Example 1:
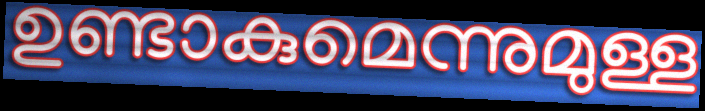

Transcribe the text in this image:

ഉണ്ടാകുമെന്നുമുള്ള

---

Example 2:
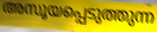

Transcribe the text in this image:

അസൂയപ്പെടുത്തുന്ന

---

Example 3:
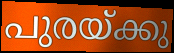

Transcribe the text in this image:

പുരയ്ക്കു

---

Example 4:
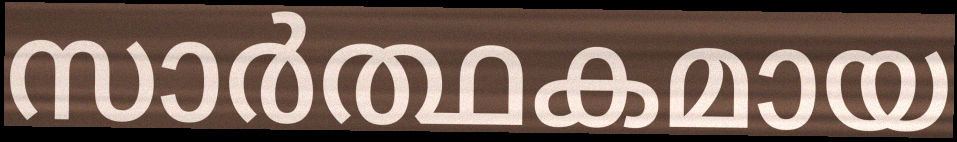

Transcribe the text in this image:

സാർത്ഥകമായ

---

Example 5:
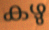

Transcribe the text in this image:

കഴു